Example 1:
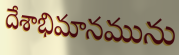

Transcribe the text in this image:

దేశాభిమానమును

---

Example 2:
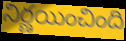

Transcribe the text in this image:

నిర్ణయించింది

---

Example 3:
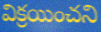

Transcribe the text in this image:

విక్రయించని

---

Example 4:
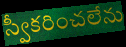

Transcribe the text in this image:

స్వీకరించలేను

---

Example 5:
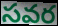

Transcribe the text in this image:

సవర